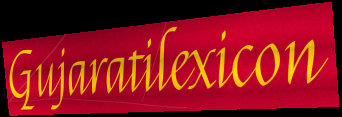
Gujaratilexicon